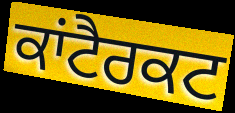
ਕਾਂਟੈਰਕਟ